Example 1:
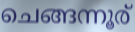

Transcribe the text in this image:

ചെങ്ങന്നൂര്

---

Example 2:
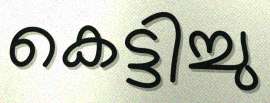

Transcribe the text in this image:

കെട്ടിച്ചു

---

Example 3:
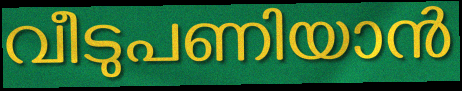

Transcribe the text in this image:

വീടുപണിയാൻ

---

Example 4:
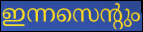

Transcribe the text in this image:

ഇന്നസെന്റും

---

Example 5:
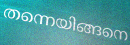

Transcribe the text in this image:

തന്നെയിങ്ങനെ